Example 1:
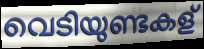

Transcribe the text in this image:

വെടിയുണ്ടകള്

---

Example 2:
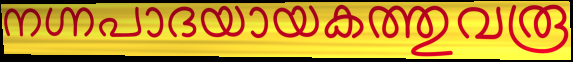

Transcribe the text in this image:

നഗ്നപാദയായകത്തുവരൂ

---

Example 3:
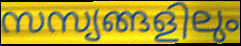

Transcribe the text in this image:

സസ്യങ്ങളിലും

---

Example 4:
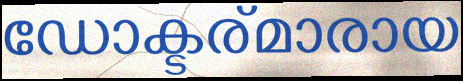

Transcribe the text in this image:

ഡോക്ടര്മാരായ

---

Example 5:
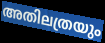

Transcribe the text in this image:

അതിലത്രയും